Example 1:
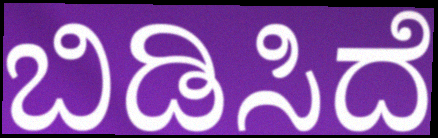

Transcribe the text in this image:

ಬಿಡಿಸಿದೆ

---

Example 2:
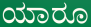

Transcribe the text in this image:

ಯಾರೂ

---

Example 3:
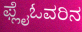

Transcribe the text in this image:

ಫ್ಲೈಓವರಿನ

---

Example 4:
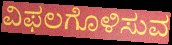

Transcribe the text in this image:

ವಿಫಲಗೊಳಿಸುವ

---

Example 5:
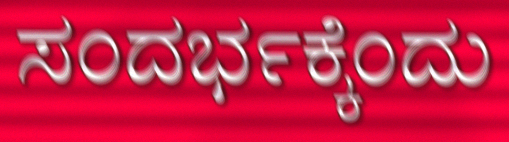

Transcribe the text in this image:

ಸಂದರ್ಭಕ್ಕೆಂದು